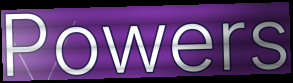
Powers